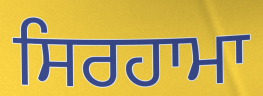
ਸਿਰਹਾਮਾ